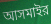
আসমাইর